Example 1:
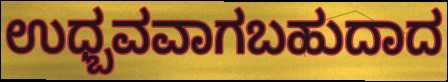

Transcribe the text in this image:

ಉಧ್ಬವವಾಗಬಹುದಾದ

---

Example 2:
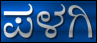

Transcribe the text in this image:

ಪಳಗಿ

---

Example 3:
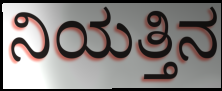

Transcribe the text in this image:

ನಿಯತ್ತಿನ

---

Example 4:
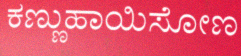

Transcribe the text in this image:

ಕಣ್ಣುಹಾಯಿಸೋಣ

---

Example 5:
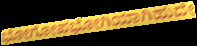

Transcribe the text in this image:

ಭೋಗೋಪಭೋಗಿಯಾಗಿಹುದೇ